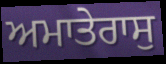
ਅਮਾਤੇਰਾਸੁ